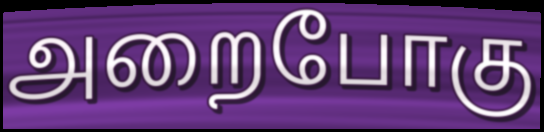
அறைபோகு